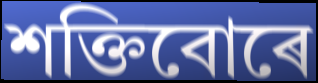
শক্তিবোৰে